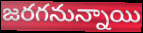
జరగనున్నాయి